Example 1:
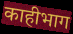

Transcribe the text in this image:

काहीभाग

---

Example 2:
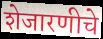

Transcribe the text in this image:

शेजारणीचे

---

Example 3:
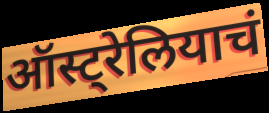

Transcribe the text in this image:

ऑस्ट्रेलियाचं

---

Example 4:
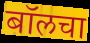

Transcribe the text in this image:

बॉलचा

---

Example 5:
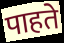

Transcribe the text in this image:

पाहते